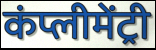
कंप्लीमेंट्री